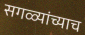
सगळ्यांच्याच